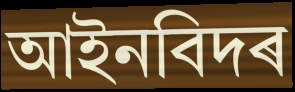
আইনবিদৰ